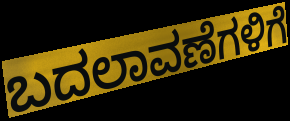
ಬದಲಾವಣೆಗಳಿಗೆ